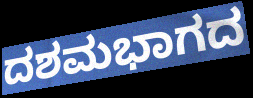
ದಶಮಭಾಗದ